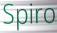
Spiro